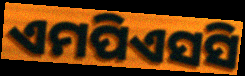
ଏମପିଏସସି